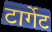
टार्गेट